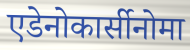
एडेनोकार्सीनोमा